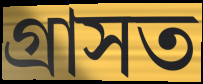
গ্ৰাসত